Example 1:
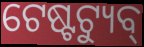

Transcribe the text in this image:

ଟେଷ୍ଟଟ୍ୟୁବ୍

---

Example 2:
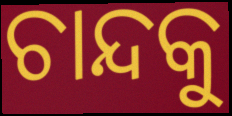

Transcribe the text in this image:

ଚାନ୍ଦକୁ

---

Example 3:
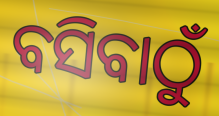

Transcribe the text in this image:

ବସିବାଠୁଁ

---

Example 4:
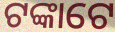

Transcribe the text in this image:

ଟଙ୍କାଟେ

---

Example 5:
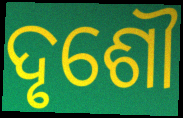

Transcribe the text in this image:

ଦୃଶୌ